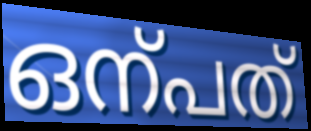
ഒന്പത്